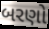
બરણો